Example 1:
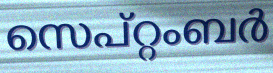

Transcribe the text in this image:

സെപ്റ്റംബർ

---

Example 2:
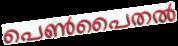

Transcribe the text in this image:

പെൺപൈതൽ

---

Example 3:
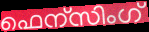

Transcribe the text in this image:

ഫെന്സിംഗ്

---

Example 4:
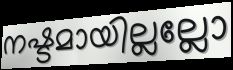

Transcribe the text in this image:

നഷ്ടമായില്ലല്ലോ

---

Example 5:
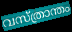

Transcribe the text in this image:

വസ്ത്രാന്തം